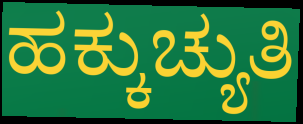
ಹಕ್ಕುಚ್ಯುತಿ